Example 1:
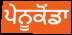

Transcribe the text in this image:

ਪੇਨੂਕੋਂਡਾ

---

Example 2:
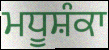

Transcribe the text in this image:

ਮਧੂਸ਼ੰਕਾ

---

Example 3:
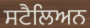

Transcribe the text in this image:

ਸਟੈਲਿਅਨ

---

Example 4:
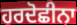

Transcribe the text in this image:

ਹਰਦੋਛੀਨਾ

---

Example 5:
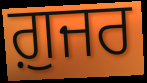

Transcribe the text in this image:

ਗ਼ੁਜਰ